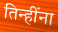
तिन्हींना